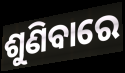
ଶୁଣିବାରେ